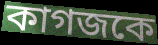
কাগজকে